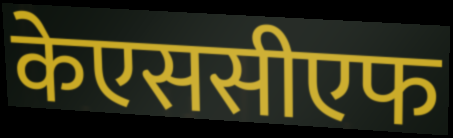
केएससीएफ